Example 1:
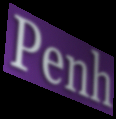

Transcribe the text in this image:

Penh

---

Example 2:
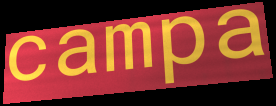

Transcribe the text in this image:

campa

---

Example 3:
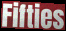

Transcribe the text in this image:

Fifties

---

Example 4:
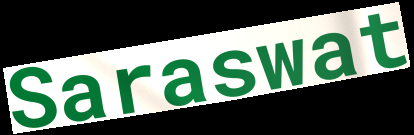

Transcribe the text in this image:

Saraswat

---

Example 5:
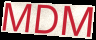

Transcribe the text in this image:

MDM